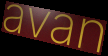
avan